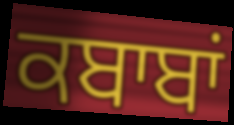
ਕਬਾਬਾਂ